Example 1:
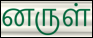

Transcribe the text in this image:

னருள்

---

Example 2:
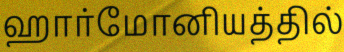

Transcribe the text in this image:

ஹார்மோனியத்தில்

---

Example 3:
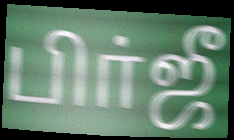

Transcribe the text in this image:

பிர்ஜீ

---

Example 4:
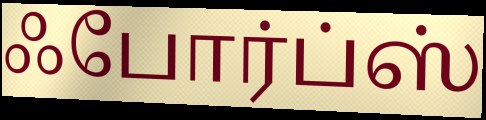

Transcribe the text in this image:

ஃபோர்ப்ஸ்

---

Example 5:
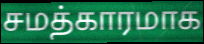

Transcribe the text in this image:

சமத்காரமாக